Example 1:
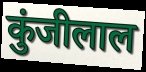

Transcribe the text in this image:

कुंजीलाल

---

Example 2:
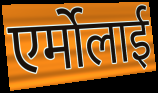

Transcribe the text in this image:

एर्मोलाई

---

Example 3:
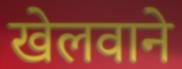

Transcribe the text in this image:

खेलवाने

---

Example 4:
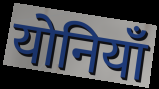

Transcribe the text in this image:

योनियाँ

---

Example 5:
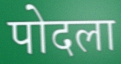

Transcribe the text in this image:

पोदला